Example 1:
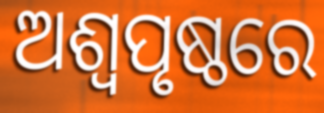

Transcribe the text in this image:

ଅଶ୍ଵପୃଷ୍ଠରେ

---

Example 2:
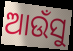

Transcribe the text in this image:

ଆଉଁସୁ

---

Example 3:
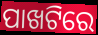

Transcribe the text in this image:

ପାଖଟିରେ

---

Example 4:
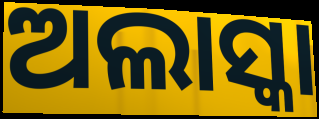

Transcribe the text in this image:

ଅଲାସ୍କା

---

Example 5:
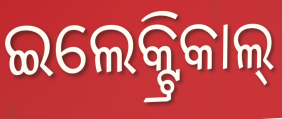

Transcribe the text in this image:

ଇଲେକ୍ଟ୍ରିକାଲ୍